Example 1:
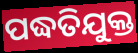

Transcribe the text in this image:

ପଦ୍ଧତିଯୁକ୍ତ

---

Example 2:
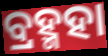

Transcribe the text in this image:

ବ୍ରହ୍ମହା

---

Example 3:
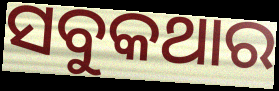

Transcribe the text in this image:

ସବୁକଥାର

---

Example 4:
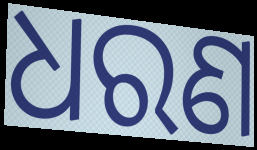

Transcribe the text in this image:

ଧରଣ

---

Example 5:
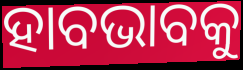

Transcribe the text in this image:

ହାବଭାବକୁ